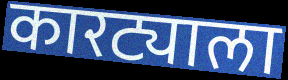
कारट्याला